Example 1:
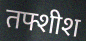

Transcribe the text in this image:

तफ्शीश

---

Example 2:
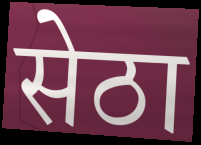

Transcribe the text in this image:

सेठा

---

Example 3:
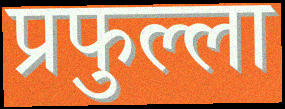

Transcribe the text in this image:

प्रफुल्ला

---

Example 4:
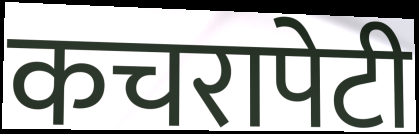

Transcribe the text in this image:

कचरापेटी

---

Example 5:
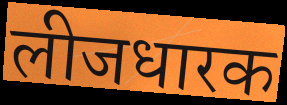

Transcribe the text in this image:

लीजधारक